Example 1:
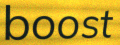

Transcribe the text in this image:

boost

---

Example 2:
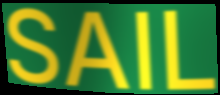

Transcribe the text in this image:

SAIL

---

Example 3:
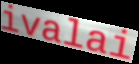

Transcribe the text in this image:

ivalai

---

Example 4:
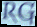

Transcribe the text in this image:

RG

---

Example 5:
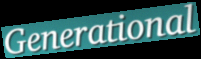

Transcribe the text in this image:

Generational